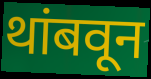
थांबवून